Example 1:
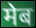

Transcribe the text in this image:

मेब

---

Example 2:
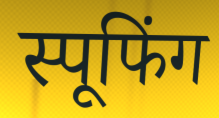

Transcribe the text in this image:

स्पूफिंग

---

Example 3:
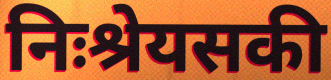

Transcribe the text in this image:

निःश्रेयसकी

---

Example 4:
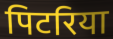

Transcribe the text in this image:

पिटरिया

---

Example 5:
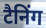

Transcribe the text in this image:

टैनिंग